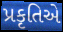
પ્રકૃતિએ